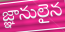
జ్ఞానులైన